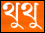
থুথু